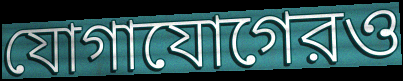
যোগাযোগেরও